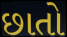
છાતો